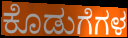
ಕೊಡುಗೆಗಳ